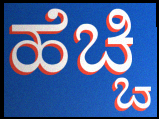
ಹೆಚ್ಚಿ